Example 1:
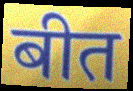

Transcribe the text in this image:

बीत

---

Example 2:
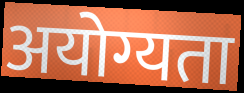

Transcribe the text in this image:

अयोग्यता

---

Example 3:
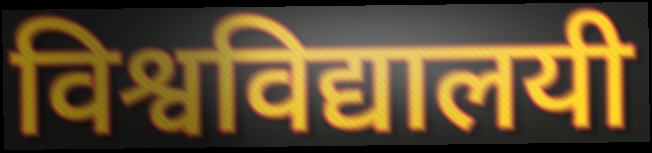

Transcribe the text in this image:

विश्वविद्यालयी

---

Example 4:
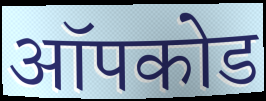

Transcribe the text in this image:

ऑपकोड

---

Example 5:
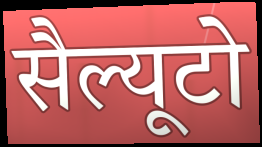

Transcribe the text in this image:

सैल्यूटो